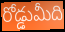
రోడ్డుమీది